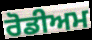
ਰੋਡੀਅਮ